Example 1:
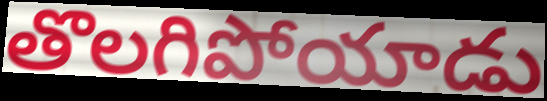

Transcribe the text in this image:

తొలగిపోయాడు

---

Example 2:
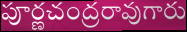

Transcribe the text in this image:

పూర్ణచంద్రరావుగారు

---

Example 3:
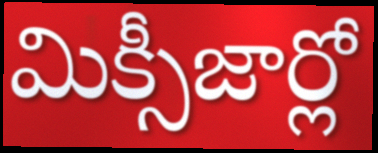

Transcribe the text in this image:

మిక్సీజార్లో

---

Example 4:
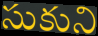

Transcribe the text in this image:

సుకుని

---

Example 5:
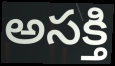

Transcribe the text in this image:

అసక్తి